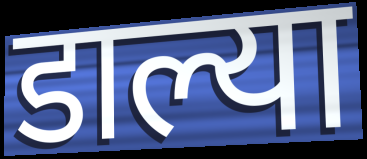
डाल्या